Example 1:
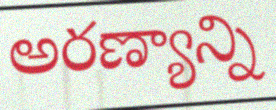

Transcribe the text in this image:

అరణ్యాన్ని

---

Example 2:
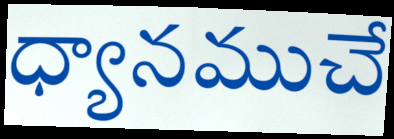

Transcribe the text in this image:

ధ్యానముచే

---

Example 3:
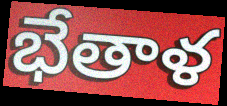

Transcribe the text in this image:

భేతాళ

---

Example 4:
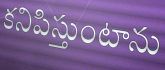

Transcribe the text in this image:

కనిపిస్తుంటాను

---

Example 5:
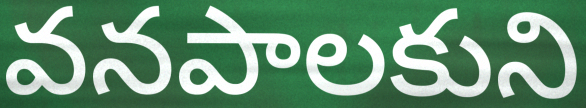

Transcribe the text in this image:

వనపాలకుని